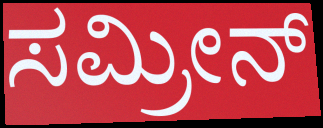
ಸಮ್ರೀನ್